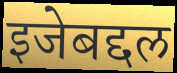
इजेबद्दल